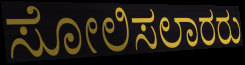
ಸೋಲಿಸಲಾರರು